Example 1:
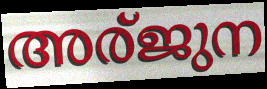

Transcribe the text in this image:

അര്ജുന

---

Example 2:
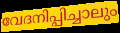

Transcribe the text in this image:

വേദനിപ്പിച്ചാലും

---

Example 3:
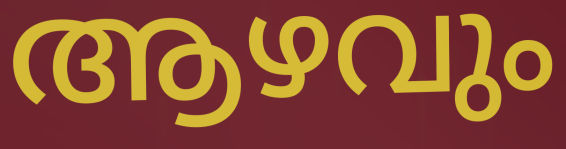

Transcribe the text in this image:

ആഴവും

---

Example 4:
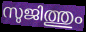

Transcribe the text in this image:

സുജിത്തും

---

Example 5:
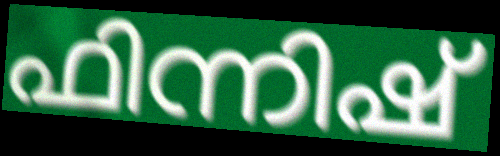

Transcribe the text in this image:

ഫിന്നിഷ്